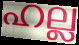
ഹല്ല